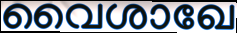
വൈശാഖേ